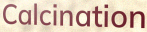
Calcination